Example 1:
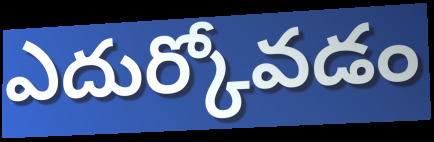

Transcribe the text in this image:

ఎదుర్కోవడం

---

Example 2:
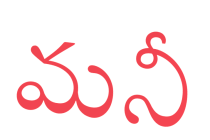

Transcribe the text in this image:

మనీ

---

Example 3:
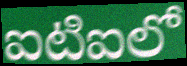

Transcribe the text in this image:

ఐటిఐలో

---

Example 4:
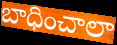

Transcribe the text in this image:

బాధించాలా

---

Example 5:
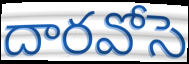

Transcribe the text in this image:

దారవోసె